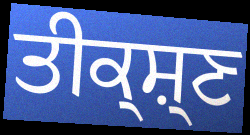
ਤੀਕ੍ਸ਼੍ਣ